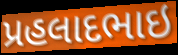
પ્રહલાદભાઇ